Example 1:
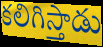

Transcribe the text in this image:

కలిగిస్తాడు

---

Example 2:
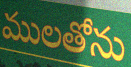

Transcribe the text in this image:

ములతోను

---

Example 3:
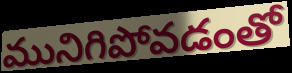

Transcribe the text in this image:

మునిగిపోవడంతో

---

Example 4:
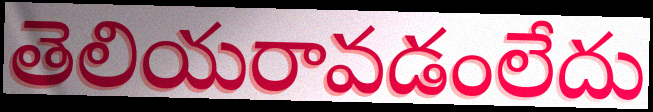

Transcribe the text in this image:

తెలియరావడంలేదు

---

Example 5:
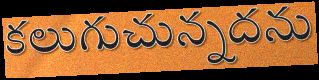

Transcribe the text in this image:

కలుగుచున్నదను